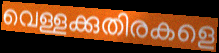
വെള്ളക്കുതിരകളെ